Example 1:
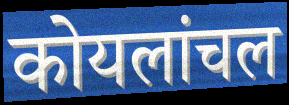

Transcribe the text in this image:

कोयलांचल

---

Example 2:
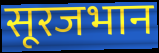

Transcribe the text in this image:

सूरजभान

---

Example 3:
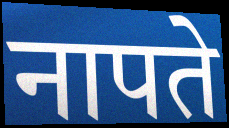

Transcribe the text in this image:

नापते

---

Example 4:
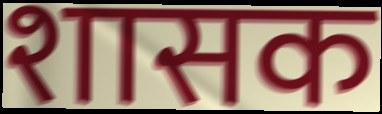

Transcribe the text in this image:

शासक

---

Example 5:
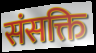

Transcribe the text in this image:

संसक्ति